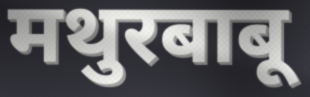
मथुरबाबू